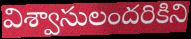
విశ్వాసులందరికిని